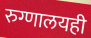
रुग्णालयही